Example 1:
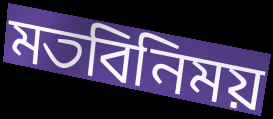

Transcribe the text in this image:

মতবিনিময়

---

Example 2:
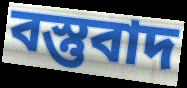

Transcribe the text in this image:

বস্তুবাদ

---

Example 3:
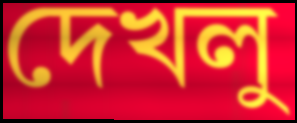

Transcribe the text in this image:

দেখলু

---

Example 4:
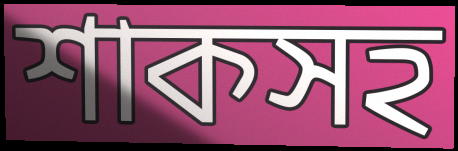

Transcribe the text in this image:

শাকসহ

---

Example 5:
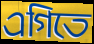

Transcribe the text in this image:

এগিতে